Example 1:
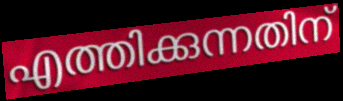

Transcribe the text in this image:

എത്തിക്കുന്നതിന്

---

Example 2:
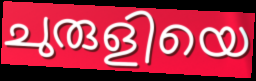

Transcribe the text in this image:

ചുരുളിയെ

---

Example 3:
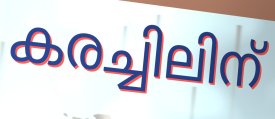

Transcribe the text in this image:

കരച്ചിലിന്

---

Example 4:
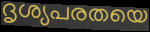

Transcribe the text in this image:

ദൃശ്യപരതയെ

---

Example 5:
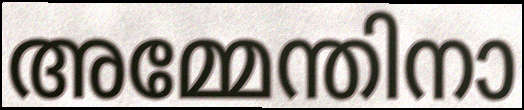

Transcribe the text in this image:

അമ്മേന്തിനാ